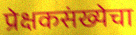
प्रेक्षकसंख्येचा